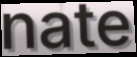
nate